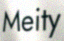
Meity